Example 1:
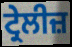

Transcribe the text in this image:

ਟ੍ਰੇਲੀਜ਼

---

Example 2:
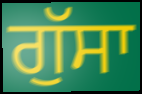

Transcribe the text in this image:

ਗੁੱਸਾ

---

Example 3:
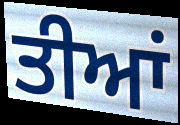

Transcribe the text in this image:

ਤੀਆਂ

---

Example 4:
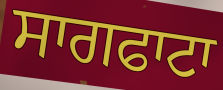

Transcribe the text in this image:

ਸਾਗਫਾਟਾ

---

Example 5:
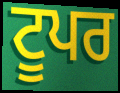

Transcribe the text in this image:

ਟੂਪਰ